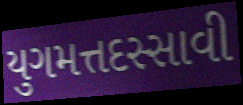
યુગમત્તદસ્સાવી